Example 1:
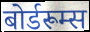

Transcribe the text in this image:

बोर्डरूम्स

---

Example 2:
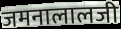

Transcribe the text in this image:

जमनालालजी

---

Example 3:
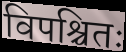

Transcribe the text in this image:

विपश्चितः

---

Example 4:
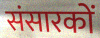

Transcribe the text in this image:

संसारकों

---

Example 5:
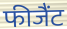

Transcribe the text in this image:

फीजैंट